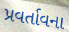
પ્રવર્તાવના